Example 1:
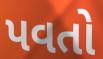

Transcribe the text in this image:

પવતો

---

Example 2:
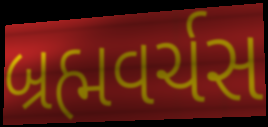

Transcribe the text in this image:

બ્રહ્મવર્ચસ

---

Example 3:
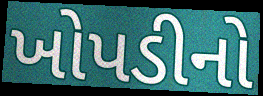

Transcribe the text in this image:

ખોપડીનો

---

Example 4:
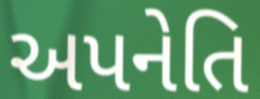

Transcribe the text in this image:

અપનેતિ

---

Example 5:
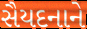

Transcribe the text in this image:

સૈયદનાને